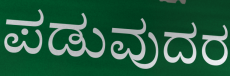
ಪಡುವುದರ